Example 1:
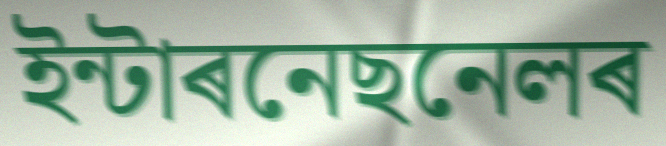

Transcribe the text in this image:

ইন্টাৰনেছনেলৰ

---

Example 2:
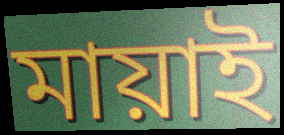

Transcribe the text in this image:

মায়াই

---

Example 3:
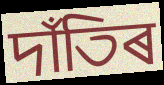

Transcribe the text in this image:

দাঁতিৰ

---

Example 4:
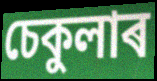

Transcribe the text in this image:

চেকুলাৰ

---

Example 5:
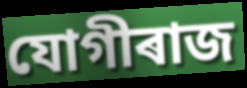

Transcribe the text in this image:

যোগীৰাজ